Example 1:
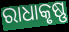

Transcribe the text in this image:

ରାଧାକୃଷ୍ଣ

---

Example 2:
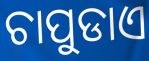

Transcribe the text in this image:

ଚାପୁଡାଏ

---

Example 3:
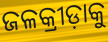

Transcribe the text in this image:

ଜଳକ୍ରୀଡ଼ାକୁ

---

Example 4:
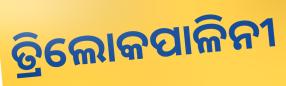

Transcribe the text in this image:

ତ୍ରିଲୋକପାଳିନୀ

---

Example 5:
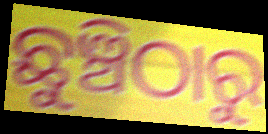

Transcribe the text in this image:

ଛୁଞ୍ଚିଠାରୁ